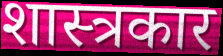
शास्त्रकार